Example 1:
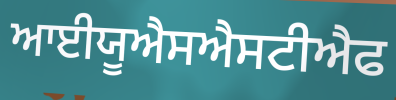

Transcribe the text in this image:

ਆਈਯੂਐਸਐਸਟੀਐਫ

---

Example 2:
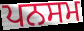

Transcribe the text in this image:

ਪਨਸਮ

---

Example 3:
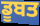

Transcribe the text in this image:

ਡੂਬਤ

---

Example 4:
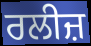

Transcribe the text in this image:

ਰਲੀਜ਼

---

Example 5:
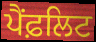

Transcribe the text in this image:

ਪੈਂਫ਼ਲਿਟ